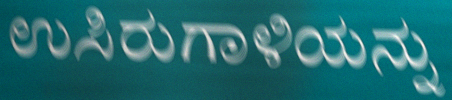
ಉಸಿರುಗಾಳಿಯನ್ನು